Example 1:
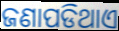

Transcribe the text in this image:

ଜଣାପଡିଥାଏ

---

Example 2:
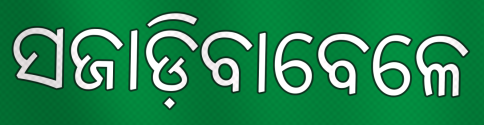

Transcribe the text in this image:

ସଜାଡ଼ିବାବେଳେ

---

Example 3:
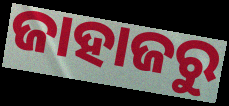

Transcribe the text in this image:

ଜାହାଜରୁ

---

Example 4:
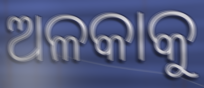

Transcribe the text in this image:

ଅଳକାକୁ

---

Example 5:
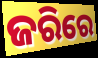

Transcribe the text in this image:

ଜରିରେ